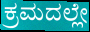
ಕ್ರಮದಲ್ಲೇ